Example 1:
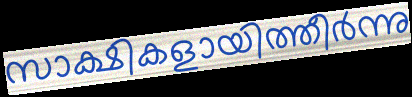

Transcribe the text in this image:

സാക്ഷികളായിത്തീർന്നു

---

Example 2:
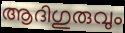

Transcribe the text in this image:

ആദിഗുരുവും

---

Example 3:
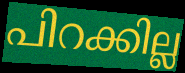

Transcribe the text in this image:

പിറക്കില്ല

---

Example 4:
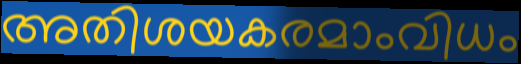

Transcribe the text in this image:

അതിശയകരമാംവിധം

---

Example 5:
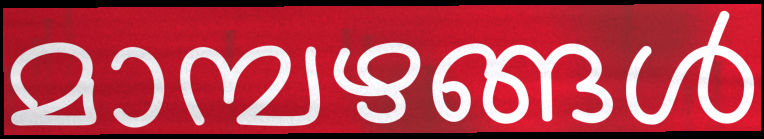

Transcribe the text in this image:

മാമ്പഴങ്ങൾ